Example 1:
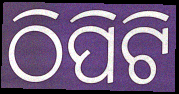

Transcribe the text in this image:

ଠିପିଟି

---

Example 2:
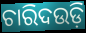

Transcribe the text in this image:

ଚାରିଦଉଡ଼ି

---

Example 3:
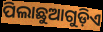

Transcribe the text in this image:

ପିଲାଛୁଆଗୁଡ଼ିଏ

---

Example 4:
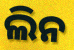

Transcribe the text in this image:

ଲିନ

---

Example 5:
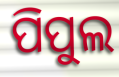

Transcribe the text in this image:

ପିପୁଲ